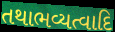
તથાભવ્યત્વાદિ